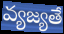
వ్యజ్యతే